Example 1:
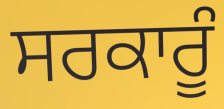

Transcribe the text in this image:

ਸਰਕਾਰੂੰ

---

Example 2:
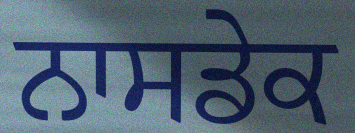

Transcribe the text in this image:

ਨਾਸਡੇਕ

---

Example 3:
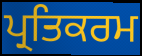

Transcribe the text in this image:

ਪ੍ਰਤਿਕਰਮ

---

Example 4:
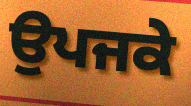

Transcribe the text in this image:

ਉਪਜਕੇ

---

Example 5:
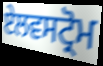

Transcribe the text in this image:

ਏਲਵਸਟ੍ਰੋਮ